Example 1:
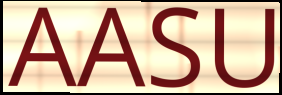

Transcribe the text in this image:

AASU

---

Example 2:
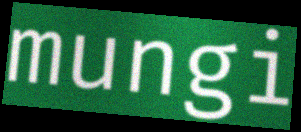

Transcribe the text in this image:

mungi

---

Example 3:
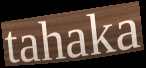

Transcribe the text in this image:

tahaka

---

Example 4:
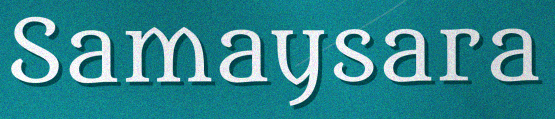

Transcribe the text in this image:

Samaysara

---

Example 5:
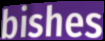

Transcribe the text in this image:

bishes